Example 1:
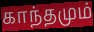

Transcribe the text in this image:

காந்தமும்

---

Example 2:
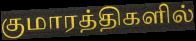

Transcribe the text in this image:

குமாரத்திகளில்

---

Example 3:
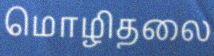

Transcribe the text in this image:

மொழிதலை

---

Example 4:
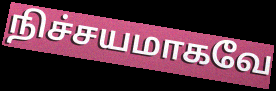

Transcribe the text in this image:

நிச்சயமாகவே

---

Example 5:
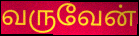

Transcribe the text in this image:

வருவேன்